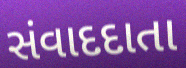
સંવાદદાતા